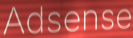
Adsense